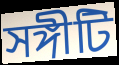
সঙ্গীটি